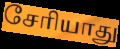
சேரியாது